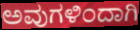
ಅವುಗಳಿಂದಾಗಿ